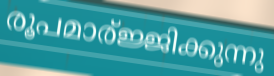
രൂപമാര്ജ്ജിക്കുന്നു